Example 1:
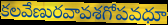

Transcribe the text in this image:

కలవేణురవావశగోపవధూ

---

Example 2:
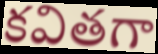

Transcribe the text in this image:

కవితగా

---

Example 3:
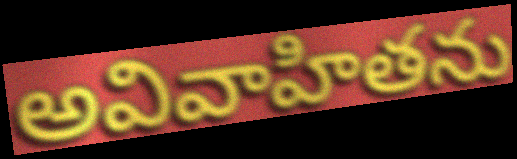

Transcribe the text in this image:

అవివాహితను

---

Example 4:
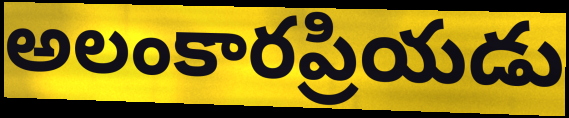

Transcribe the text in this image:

అలంకారప్రియడు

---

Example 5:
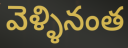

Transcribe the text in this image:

వెళ్ళినంత